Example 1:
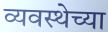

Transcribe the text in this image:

व्यवस्थेच्या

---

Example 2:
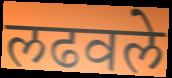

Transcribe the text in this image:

लढवले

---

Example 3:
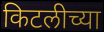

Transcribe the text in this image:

किटलीच्या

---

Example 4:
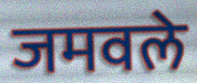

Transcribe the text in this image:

जमवले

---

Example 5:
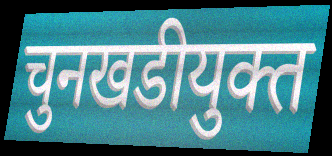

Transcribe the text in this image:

चुनखडीयुक्त